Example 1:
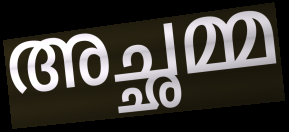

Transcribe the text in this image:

അച്ഛമ്മ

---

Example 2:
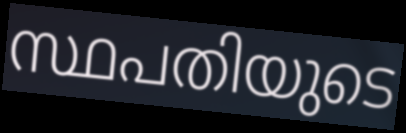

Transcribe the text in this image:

സ്ഥപതിയുടെ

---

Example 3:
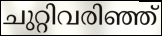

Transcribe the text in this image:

ചുറ്റിവരിഞ്ഞ്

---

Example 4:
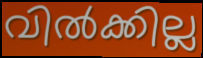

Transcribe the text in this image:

വിൽക്കില്ല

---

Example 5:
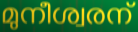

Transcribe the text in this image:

മുനീശ്വരന്